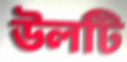
উলটি